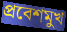
প্রবেশমুখ